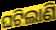
ଘଟିଲାଣି